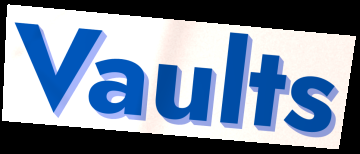
Vaults